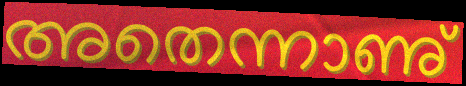
അതെന്നാണു്